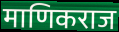
माणिकराज